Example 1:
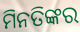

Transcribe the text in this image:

ମିନତିଙ୍କର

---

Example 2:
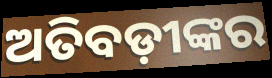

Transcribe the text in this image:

ଅତିବଡ଼ୀଙ୍କର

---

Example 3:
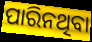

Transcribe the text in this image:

ପାରିନଥିବା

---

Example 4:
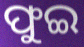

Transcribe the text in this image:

ଫୁଇ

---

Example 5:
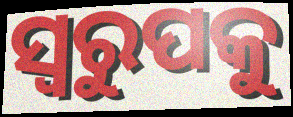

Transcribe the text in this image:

ସ୍ଵରୁପକୁ